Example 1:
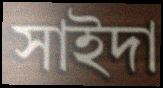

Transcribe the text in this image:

সাইদা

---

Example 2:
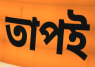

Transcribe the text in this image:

তাপই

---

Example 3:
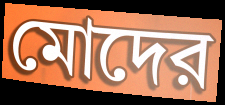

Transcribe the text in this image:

মোদের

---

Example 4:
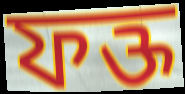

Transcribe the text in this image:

ফক্ত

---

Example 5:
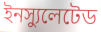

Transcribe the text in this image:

ইনস্যুলেটেড